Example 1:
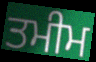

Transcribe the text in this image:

ਤਮੀਮ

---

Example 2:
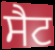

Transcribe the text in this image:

ਸੈਟ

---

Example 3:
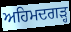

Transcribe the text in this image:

ਅਹਿਮਦਗੜ੍ਹ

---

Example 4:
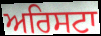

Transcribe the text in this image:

ਅਰਿਸਟਾ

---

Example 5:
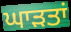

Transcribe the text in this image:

ਘਾਡ਼ਤਾਂ